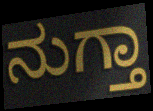
ನುಗ್ತಾ